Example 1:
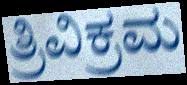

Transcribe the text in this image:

ತ್ರಿವಿಕ್ರಮ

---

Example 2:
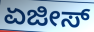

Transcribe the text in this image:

ಏಜೀಸ್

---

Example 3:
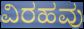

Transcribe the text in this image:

ವಿರಹವು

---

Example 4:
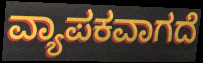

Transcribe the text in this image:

ವ್ಯಾಪಕವಾಗದೆ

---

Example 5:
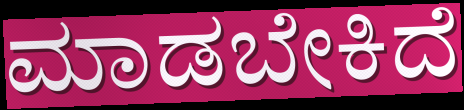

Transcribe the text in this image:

ಮಾಡಬೇಕಿದೆ